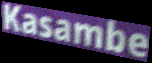
Kasambe